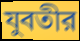
যুবতীর